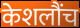
केशलौंच